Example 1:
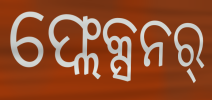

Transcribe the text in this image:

ଫ୍ଲେକ୍ସନର୍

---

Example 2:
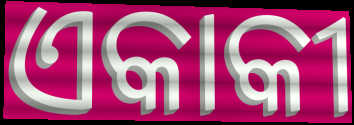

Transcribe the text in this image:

ଏକାକୀ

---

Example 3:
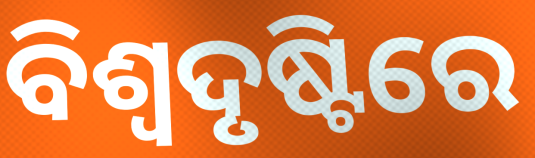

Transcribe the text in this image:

ବିଶ୍ଵଦୃଷ୍ଟିରେ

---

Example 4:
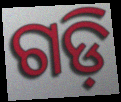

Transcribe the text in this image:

ଗଡ଼ି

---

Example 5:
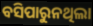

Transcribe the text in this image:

ବସିପାରୁନଥିଲା